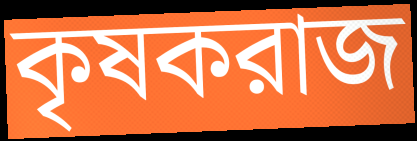
কৃষকরাজ